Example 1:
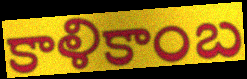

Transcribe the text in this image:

కాళికాంబ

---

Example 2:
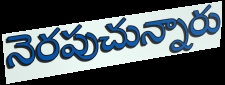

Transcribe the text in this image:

నెరపుచున్నారు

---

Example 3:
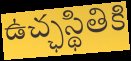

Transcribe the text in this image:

ఉచ్ఛస్థితికి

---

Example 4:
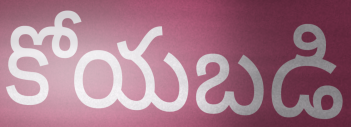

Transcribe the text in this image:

కోయబడి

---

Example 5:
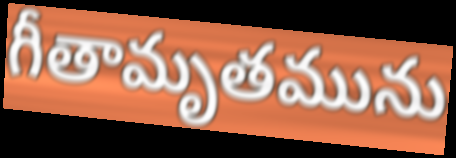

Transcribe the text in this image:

గీతామృతమును